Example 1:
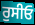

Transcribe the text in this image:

ਰੁਸੀਓ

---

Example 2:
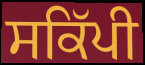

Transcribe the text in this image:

ਸਕਿੱਪੀ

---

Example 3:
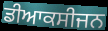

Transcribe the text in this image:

ਡੀਆਕਸੀਜਨ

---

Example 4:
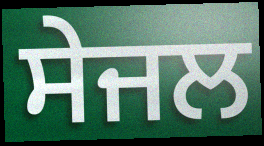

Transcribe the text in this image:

ਸੇਜਲ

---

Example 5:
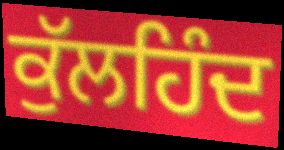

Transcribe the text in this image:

ਕੁੱਲਹਿੰਦ